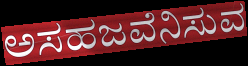
ಅಸಹಜವೆನಿಸುವ